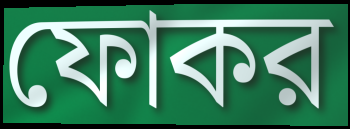
ফোকর